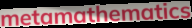
metamathematics